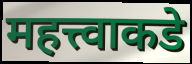
महत्त्वाकडे